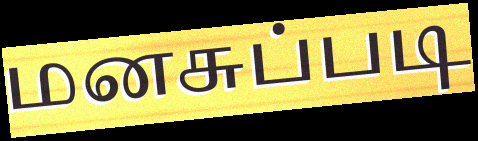
மனசுப்படி